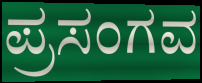
ಪ್ರಸಂಗವ